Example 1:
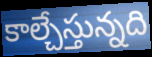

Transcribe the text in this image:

కాల్చేస్తున్నది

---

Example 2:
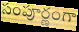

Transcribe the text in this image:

సంపూర్ణంగా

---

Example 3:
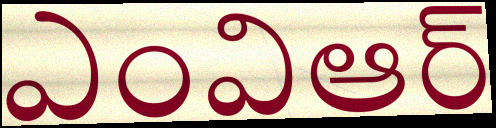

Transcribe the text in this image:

ఎంవిఆర్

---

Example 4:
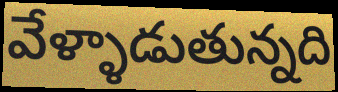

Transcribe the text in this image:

వేళ్ళాడుతున్నది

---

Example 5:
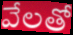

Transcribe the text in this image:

వేలతో